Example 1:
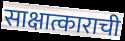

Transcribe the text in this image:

साक्षात्काराची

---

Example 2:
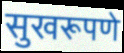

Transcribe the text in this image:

सुखरूपणे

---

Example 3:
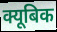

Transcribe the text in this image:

क्यूबिक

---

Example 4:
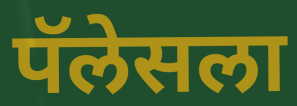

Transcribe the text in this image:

पॅलेसला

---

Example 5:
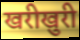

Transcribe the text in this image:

खरीखुरी